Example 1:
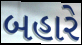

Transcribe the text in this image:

બહારે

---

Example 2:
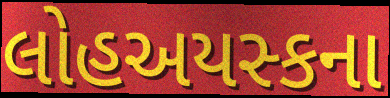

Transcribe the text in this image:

લોહઅયસ્કના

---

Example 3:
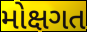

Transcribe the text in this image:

મોક્ષગત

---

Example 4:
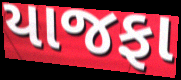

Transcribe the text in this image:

યાજફા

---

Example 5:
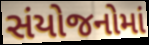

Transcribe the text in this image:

સંયોજનોમાં